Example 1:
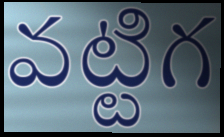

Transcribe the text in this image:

వట్టిగ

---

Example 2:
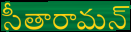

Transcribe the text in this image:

సీతారామన్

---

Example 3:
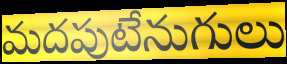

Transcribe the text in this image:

మదపుటేనుగులు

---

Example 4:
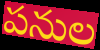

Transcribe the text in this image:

పనుల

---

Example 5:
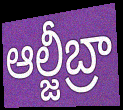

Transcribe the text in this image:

ఆల్జీబ్రా